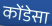
कोंडेसा